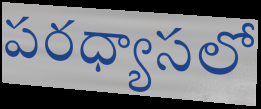
పరధ్యాసలో